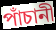
পাঁচানী